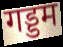
गड्डम